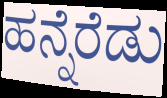
ಹನ್ನೆರೆಡು